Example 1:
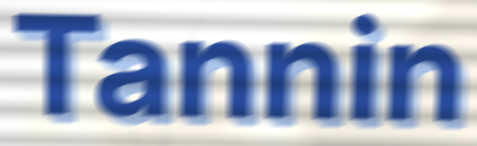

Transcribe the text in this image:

Tannin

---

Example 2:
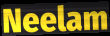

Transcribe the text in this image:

Neelam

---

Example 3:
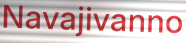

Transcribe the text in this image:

Navajivanno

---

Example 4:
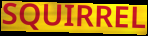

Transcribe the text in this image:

SQUIRREL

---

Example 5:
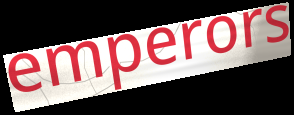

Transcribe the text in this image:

emperors